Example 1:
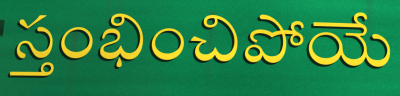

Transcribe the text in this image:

స్తంభించిపోయే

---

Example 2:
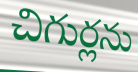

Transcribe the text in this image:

చిగుర్లను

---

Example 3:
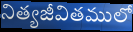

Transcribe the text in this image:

నిత్యజీవితములో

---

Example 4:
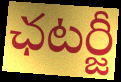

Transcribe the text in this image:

ఛటర్జీ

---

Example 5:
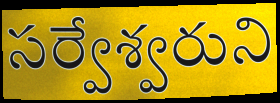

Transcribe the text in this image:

సర్వేశ్వరుని